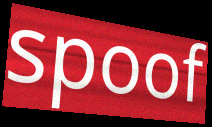
spoof